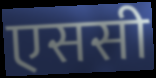
एससी